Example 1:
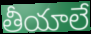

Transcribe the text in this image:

తీయాలే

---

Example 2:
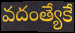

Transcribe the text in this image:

వదంత్యేకే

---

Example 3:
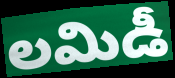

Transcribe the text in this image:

లమిడీ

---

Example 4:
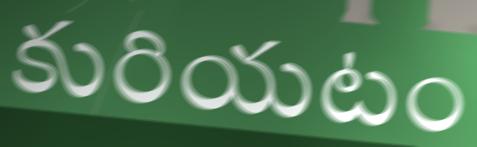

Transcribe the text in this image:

కురియటం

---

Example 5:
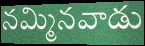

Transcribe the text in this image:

నమ్మినవాడు